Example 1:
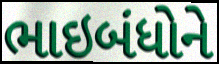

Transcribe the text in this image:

ભાઇબંધોને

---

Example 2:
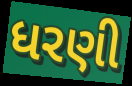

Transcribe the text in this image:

ધરણી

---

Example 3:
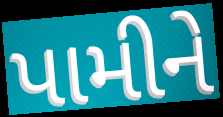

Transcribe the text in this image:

પામીને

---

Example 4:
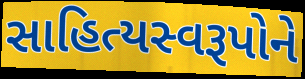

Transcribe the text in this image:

સાહિત્યસ્વરૂપોને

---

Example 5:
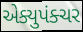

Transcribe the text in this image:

એક્યુપંક્ચર